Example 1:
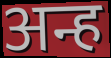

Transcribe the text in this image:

अन्ह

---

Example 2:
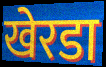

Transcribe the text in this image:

खेरडा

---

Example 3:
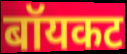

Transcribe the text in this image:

बॉयकट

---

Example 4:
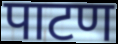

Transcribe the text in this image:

पाटण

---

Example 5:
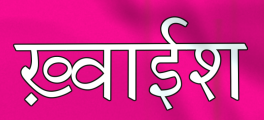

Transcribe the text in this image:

ख़्वाईश